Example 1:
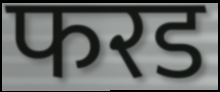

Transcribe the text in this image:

फरड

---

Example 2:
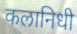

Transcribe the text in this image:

कलानिधी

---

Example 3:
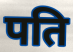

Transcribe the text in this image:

पति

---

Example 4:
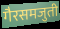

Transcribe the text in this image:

गैरसमजुती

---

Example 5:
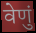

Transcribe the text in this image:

वेणुं